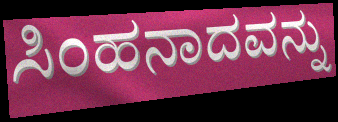
ಸಿಂಹನಾದವನ್ನು